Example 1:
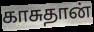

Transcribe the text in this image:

காசுதான்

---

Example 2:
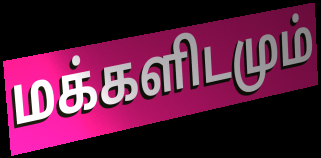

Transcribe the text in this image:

மக்களிடமும்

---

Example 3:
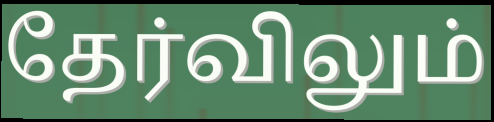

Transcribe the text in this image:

தேர்விலும்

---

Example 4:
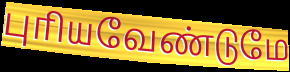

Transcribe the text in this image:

புரியவேண்டுமே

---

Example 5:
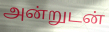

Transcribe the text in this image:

அன்றுடன்